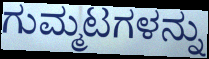
ಗುಮ್ಮಟಗಳನ್ನು